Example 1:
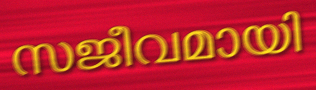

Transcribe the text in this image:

സജീവമായി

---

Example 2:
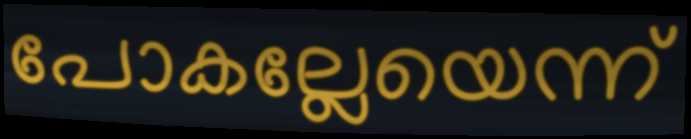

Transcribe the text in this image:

പോകല്ലേയെന്ന്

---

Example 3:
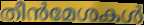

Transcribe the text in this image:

തീൻമേശകൾ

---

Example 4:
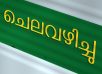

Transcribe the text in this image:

ചെലവഴിച്ചു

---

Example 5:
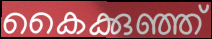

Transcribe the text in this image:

കൈക്കുഞ്ഞ്